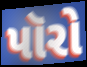
પૉરો